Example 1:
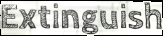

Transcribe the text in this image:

Extinguish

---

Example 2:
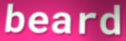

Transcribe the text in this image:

beard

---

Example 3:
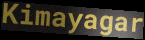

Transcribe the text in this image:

Kimayagar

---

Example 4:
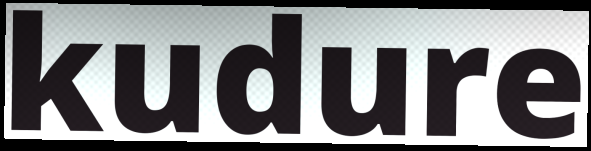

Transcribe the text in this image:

kudure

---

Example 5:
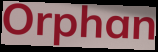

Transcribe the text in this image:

Orphan